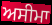
ਅਸੀਮਾ